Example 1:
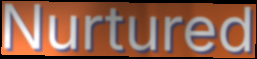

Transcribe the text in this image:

Nurtured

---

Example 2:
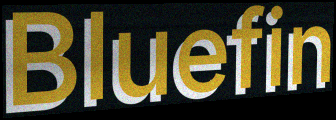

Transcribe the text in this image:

Bluefin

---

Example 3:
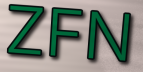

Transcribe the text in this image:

ZFN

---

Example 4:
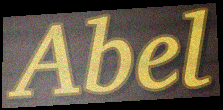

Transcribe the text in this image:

Abel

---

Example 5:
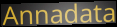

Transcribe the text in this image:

Annadata